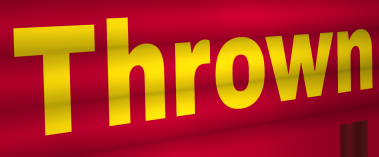
Thrown